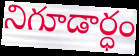
నిగూడార్ధం